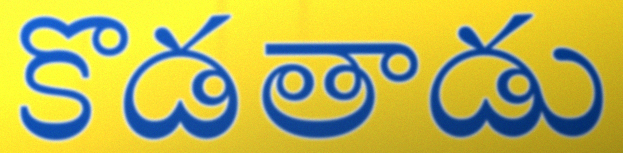
కొడతాడు